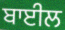
ਬਾਈਲ